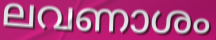
ലവണാശം